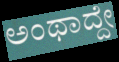
ಅಂಥಾದ್ದೇ